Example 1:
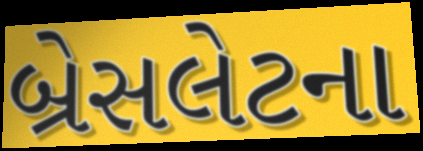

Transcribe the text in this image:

બ્રેસલેટના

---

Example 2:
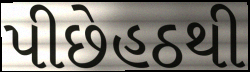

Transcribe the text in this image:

પીછેહઠથી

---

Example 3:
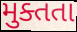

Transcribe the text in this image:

મુક્તતા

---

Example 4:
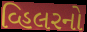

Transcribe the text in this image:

વ્હિલરનો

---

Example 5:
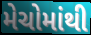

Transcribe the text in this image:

મેચોમાંથી